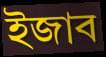
ইজাব